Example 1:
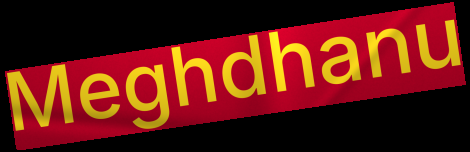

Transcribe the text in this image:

Meghdhanu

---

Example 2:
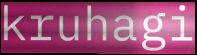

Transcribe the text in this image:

kruhagi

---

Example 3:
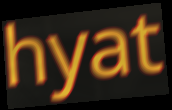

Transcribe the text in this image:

hyat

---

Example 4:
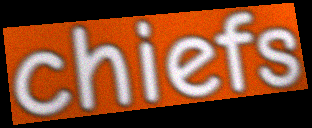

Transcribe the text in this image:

chiefs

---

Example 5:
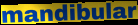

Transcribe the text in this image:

mandibular